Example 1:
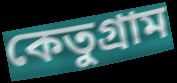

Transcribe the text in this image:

কেতুগ্রাম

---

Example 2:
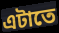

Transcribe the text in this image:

এটাতে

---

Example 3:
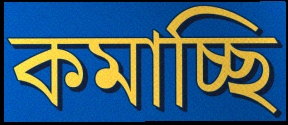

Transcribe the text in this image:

কমাচ্ছি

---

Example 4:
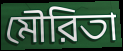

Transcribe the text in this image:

মৌরিতা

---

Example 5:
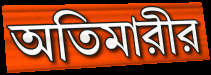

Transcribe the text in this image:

অতিমারীর